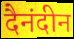
दैनंदीन